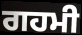
ਗਹਮੀ